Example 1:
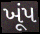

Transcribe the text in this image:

ખૂંપ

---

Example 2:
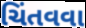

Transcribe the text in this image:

ચિંતવવા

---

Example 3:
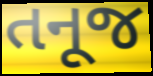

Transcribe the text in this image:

તનૂજ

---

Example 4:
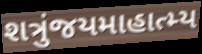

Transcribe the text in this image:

શત્રુંજયમાહાત્મ્ય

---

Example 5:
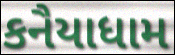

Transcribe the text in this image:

કનૈયાધામ